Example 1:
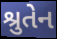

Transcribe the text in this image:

શ્રુતેન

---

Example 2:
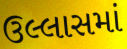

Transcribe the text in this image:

ઉલ્લાસમાં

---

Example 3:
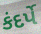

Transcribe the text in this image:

કંદર્પે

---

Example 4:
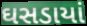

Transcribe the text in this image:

ઘસડાયાં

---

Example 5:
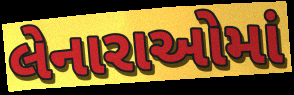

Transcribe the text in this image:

લેનારાઓમાં